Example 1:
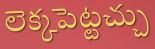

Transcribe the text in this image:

లెక్కపెట్టచ్చు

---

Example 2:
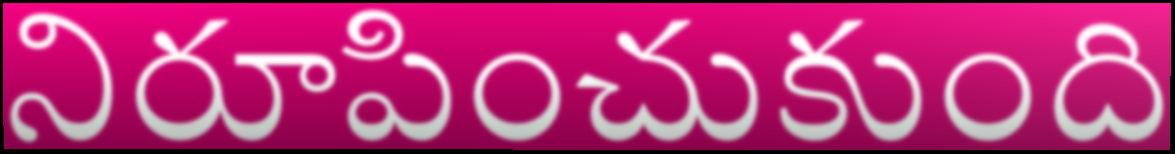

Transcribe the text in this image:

నిరూపించుకుంది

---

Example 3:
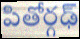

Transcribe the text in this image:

పితోర్గఢ్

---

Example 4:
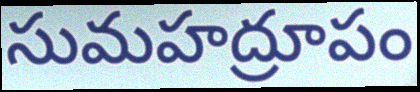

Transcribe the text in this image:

సుమహద్రూపం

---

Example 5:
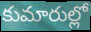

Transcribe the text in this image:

కుమారుల్లో